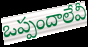
ఒప్పందాలేవీ